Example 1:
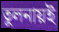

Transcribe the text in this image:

তুলনায়ই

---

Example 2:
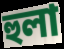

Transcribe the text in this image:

হুলা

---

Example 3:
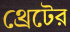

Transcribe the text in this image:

থ্রেটের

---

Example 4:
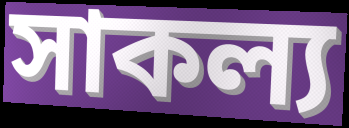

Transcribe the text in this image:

সাকল্য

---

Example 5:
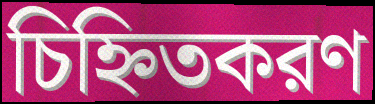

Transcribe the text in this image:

চিহ্নিতকরণ